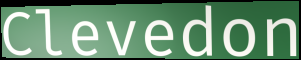
Clevedon